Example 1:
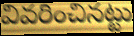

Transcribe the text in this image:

వివరించినట్టు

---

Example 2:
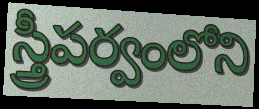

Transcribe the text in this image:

స్త్రీపర్వంలోని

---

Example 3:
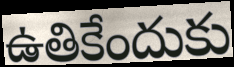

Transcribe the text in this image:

ఉతికేందుకు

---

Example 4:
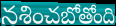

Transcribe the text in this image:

నశించబోతోంది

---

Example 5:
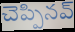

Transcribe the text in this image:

చెప్పినవ్